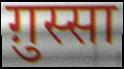
ग़ुस्सा